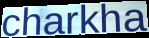
charkha